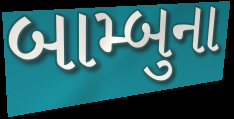
બામ્બુના